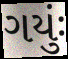
ગયુંઃ